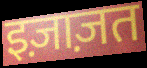
इज़ाज़त